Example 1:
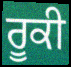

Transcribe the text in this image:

ਰੂਕੀ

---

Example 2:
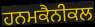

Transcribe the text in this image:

ਹਨਮਕੈਨੀਕਲ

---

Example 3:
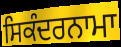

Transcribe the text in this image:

ਸਿਕੰਦਰਨਾਮਾ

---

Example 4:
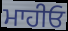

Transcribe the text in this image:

ਮਾਹੀਓ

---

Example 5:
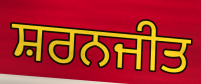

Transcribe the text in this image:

ਸ਼ਰਨਜੀਤ